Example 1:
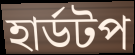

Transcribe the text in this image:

হার্ডটপ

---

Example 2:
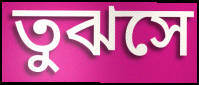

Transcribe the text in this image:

তুঝসে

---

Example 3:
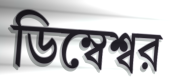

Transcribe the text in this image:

ডিম্বেশ্বর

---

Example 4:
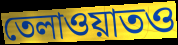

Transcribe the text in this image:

তেলাওয়াতও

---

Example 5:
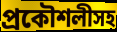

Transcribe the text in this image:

প্রকৌশলীসহ